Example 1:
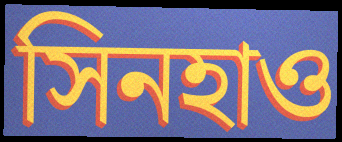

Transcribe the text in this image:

সিনহাও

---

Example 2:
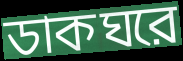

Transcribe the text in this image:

ডাকঘরে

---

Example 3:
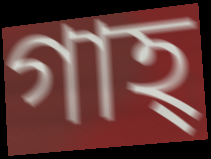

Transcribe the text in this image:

গাহ্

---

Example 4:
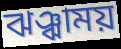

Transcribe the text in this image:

ঝঞ্ঝাময়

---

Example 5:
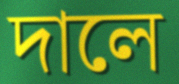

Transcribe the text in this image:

দালে